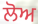
ਲੋਅ